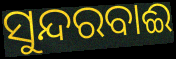
ସୁନ୍ଦରବାଈ